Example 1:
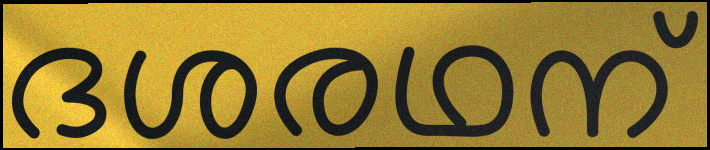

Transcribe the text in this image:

ദശരഥന്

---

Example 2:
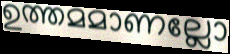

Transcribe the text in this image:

ഉത്തമമാണല്ലോ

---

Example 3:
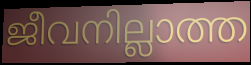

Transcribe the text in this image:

ജീവനില്ലാത്ത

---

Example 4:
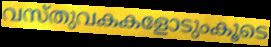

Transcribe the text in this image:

വസ്തുവകകളോടുംകൂടെ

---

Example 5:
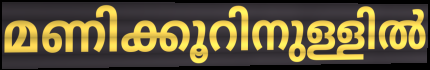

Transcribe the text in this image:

മണിക്കൂറിനുള്ളിൽ